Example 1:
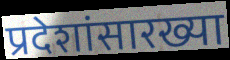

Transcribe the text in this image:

प्रदेशांसारख्या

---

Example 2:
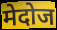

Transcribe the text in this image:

मेदोज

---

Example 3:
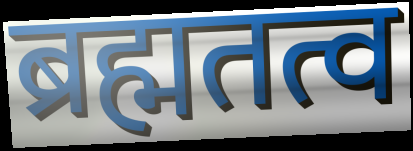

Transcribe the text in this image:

ब्रह्मतत्व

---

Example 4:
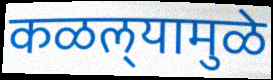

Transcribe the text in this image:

कळल्यामुळे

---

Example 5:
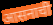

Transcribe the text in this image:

आसनाची